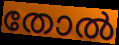
തോൽ